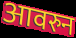
आवरुन